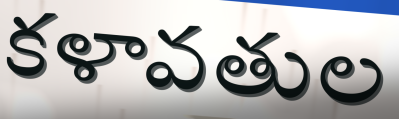
కళావతుల